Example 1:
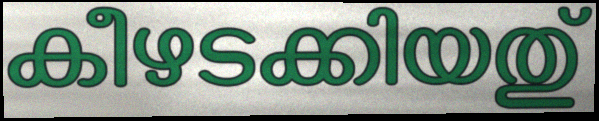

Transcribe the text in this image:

കീഴടക്കിയതു്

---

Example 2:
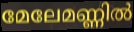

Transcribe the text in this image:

മേലേമണ്ണിൽ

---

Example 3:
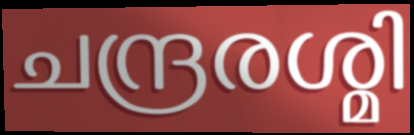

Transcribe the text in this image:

ചന്ദ്രരശ്മി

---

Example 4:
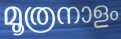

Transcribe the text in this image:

മൂത്രനാളം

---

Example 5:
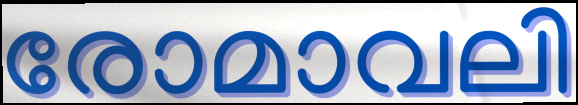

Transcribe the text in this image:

രോമാവലി